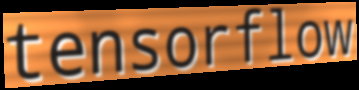
tensorflow